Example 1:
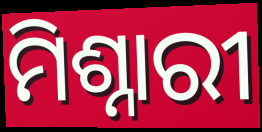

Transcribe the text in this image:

ମିଶ୍ନାରୀ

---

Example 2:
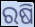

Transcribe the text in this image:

ରଷି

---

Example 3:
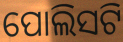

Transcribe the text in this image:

ପୋଲିସଟି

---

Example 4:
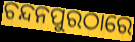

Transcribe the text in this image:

ଚନ୍ଦନପୁରଠାରେ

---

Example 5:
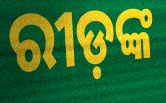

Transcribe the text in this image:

ରୀଡ଼ଙ୍କ